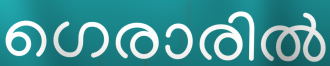
ഗെരാരിൽ